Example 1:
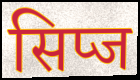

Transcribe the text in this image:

सिप्ज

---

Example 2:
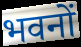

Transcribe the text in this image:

भवनों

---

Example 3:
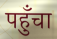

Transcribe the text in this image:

पहुँचा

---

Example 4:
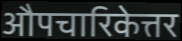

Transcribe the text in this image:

औपचारिकेत्तर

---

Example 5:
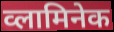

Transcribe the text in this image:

व्लामिनेक